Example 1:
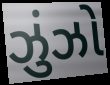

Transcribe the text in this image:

ઝુંઝો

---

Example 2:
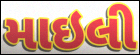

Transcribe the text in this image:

માઇલી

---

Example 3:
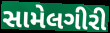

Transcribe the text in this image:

સામેલગીરી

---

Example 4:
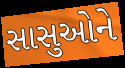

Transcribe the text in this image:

સાસુઓને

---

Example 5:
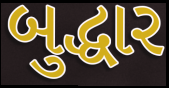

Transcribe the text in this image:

બુદ્ધાર